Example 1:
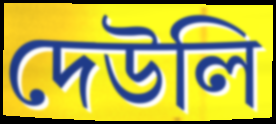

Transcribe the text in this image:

দেউলি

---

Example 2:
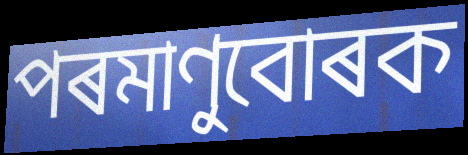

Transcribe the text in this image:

পৰমাণুবোৰক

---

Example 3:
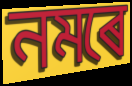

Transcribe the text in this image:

নমৰে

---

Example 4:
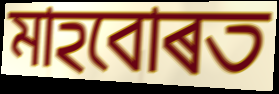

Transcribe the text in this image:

মাহবোৰত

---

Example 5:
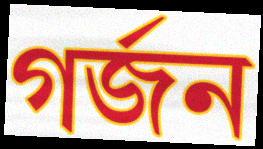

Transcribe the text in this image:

গৰ্জন